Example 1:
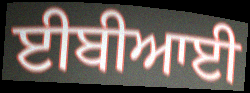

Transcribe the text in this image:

ਈਬੀਆਈ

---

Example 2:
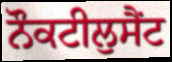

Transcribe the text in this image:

ਨੌਕਟੀਲੁਸੈਂਟ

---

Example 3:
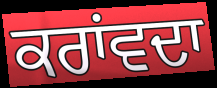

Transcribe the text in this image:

ਕਰਾਂਵਦਾ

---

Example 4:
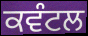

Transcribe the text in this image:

ਕਵੰਟਲ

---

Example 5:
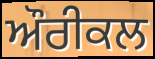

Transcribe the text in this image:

ਔਰੀਕਲ